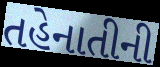
તહેનાતીની